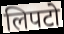
लिपटो